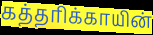
கத்தரிக்காயின்